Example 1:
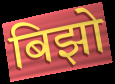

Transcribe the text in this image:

बिझो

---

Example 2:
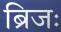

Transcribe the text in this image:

ब्रिजः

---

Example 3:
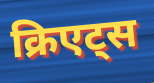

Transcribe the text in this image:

क्रिएट्स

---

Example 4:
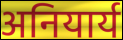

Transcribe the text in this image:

अनियार्य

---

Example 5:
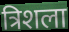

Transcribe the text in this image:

त्रिशला